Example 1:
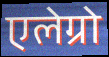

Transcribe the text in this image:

एलेग्रो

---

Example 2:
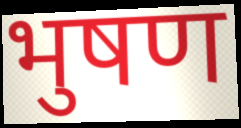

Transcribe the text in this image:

भुषण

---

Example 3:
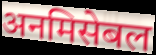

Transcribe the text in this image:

अनमिसेबल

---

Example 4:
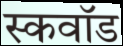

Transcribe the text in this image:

स्कवॉड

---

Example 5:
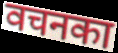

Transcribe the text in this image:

वचनका